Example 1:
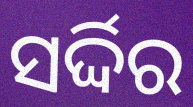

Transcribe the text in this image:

ସର୍ଦ୍ଦିର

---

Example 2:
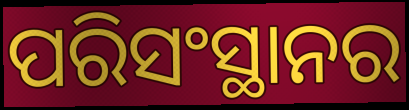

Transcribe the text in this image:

ପରିସଂସ୍ଥାନର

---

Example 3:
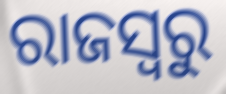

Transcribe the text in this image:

ରାଜସ୍ୱରୁ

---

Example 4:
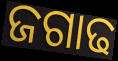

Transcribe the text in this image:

ଜଗାଢ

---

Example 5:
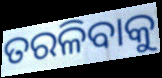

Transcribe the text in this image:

ତରଳିବାକୁ